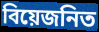
বিয়েজনিত